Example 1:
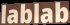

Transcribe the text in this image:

lablab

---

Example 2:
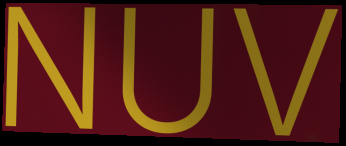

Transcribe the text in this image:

NUV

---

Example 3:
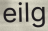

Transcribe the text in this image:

eilg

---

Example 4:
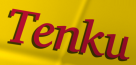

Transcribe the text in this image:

Tenku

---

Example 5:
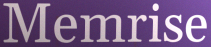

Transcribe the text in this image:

Memrise